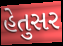
હેતુસર